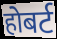
होबर्ट